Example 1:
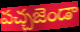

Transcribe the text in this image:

పచ్చజెండా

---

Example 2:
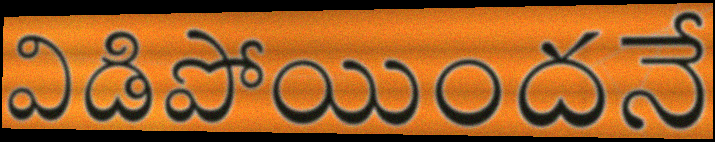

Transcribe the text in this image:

విడిపోయిందనే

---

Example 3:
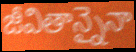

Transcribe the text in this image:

జీవితాన్నైనా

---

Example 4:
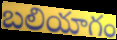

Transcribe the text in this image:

బలియాగం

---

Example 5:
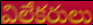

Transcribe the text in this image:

విలేకరులు